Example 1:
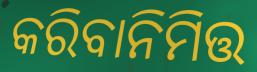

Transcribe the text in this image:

କରିବାନିମିତ୍ତ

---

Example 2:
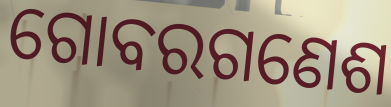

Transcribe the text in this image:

ଗୋବରଗଣେଶ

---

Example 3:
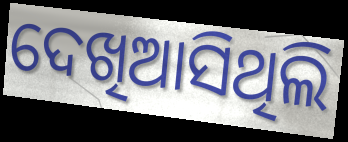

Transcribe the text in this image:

ଦେଖିଆସିଥିଲି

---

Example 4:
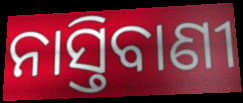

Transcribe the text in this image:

ନାସ୍ତିବାଣୀ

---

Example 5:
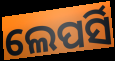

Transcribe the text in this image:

ଲେପର୍ସି